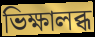
ভিক্ষালব্ধ